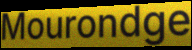
Mourondge